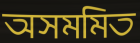
অসমমিত